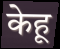
केहू